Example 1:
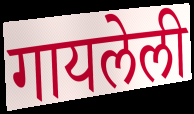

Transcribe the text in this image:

गायलेली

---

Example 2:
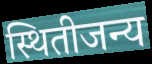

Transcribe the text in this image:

स्थितीजन्य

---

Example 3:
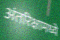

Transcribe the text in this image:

अंतरिक्षामध्ये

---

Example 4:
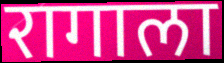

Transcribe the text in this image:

रागाला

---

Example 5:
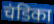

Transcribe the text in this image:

चंडिका